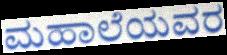
ಮಹಾಲೆಯವರ